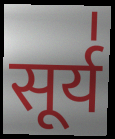
सूर्य॑